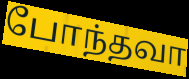
போந்தவா